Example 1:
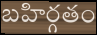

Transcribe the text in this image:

బహిర్గతం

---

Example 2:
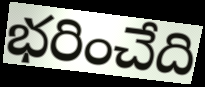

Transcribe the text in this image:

భరించేది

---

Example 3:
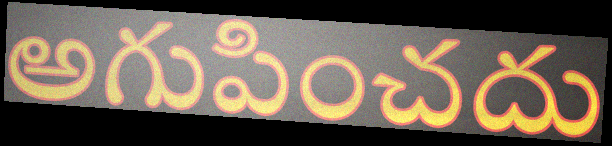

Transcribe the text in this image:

అగుపించదు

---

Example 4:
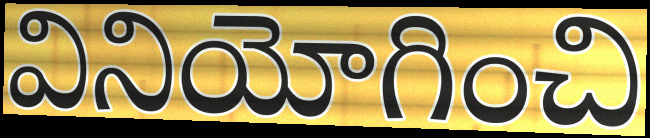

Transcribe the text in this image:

వినియోగించి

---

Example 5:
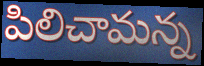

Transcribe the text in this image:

పిలిచామన్న